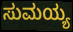
ಸುಮಯ್ಯ